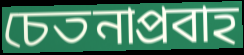
চেতনাপ্রবাহ